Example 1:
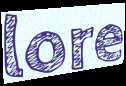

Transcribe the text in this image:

lore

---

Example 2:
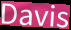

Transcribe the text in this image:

Davis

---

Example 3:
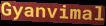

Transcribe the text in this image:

Gyanvimal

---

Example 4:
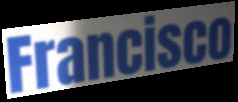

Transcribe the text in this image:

Francisco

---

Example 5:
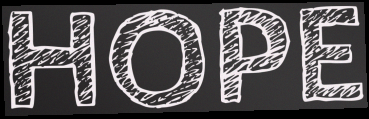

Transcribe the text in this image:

HOPE